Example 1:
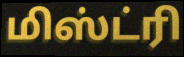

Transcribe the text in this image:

மிஸ்ட்ரி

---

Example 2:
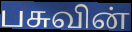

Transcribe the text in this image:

பசுவின்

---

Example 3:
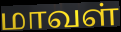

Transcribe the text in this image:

மாவள்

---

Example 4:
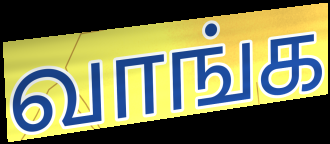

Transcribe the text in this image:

வாங்க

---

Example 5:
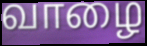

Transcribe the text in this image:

வாழை